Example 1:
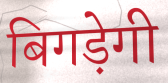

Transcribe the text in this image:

बिगड़ेगी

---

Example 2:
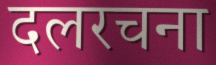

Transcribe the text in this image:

दलरचना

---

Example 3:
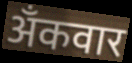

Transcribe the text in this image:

अँकवार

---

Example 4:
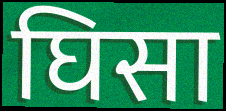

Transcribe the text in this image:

घिसा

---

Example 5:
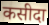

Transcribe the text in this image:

कसीदा